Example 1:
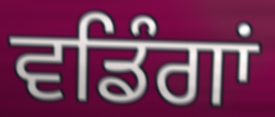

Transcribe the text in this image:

ਵਡਿੰਗਾਂ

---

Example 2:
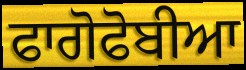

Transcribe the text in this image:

ਫਾਗੋਫੋਬੀਆ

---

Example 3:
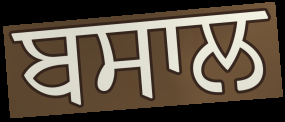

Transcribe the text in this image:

ਬਸਾਲ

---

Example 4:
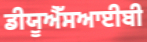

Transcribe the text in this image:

ਡੀਯੂਐੱਸਆਈਬੀ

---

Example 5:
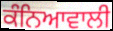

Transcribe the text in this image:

ਕੰਨਿਆਵਾਲੀ